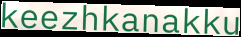
keezhkanakku